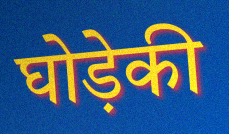
घोड़ेकी